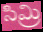
సిమ్రి